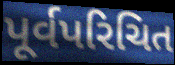
પૂર્વપરિચિત